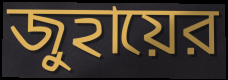
জুহায়ের